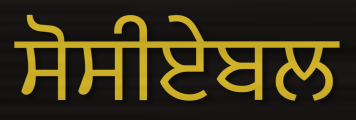
ਸੋਸੀਏਬਲ